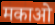
मकाओ